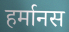
हर्मानस